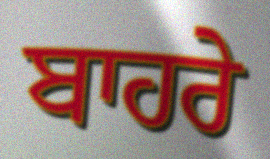
ਬਾਹਰੇ